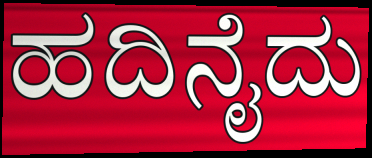
ಹದಿನೈದು